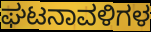
ಘಟನಾವಳಿಗಳ